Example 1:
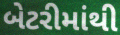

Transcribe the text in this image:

બેટરીમાંથી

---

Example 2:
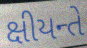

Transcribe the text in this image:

ક્ષીયન્તે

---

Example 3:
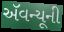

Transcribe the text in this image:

ઍવન્યૂની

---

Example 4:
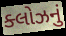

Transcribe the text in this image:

ક્લોઝનું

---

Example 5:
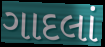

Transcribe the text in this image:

ગાદલાં